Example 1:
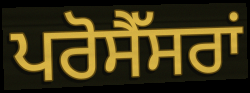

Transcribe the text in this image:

ਪਰੋਸੈੱਸਰਾਂ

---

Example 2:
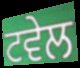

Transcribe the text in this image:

ਟਵੇਲ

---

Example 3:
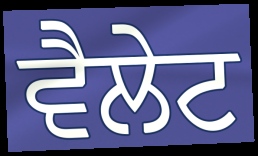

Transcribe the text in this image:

ਵੈਲੇਟ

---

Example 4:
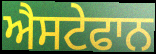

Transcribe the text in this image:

ਐਸਟੇਫਾਨ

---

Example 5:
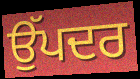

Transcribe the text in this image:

ਉੱਪਦਰ